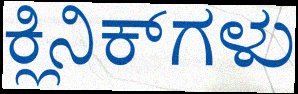
ಕ್ಲಿನಿಕ್‌ಗಳು